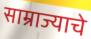
साम्राज्याचे